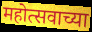
महोत्सवाच्या